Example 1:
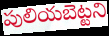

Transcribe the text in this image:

పులియబెట్టని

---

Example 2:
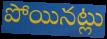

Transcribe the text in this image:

పోయినట్లు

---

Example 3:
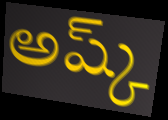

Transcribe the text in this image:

అష్క్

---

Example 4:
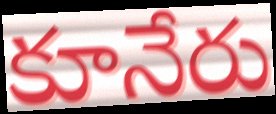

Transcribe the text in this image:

కూనేరు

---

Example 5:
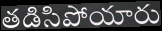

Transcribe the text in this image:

తడిసిపోయారు